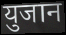
युजान